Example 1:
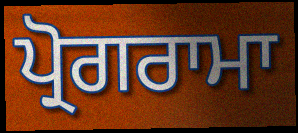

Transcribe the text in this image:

ਪ੍ਰੋਗਰਾਮਾ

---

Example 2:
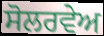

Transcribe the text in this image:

ਸੋਲਰਵੇਅ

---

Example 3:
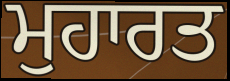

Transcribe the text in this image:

ਮੁਹਾਰਤ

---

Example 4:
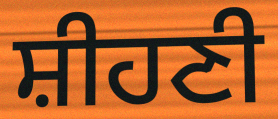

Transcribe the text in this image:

ਸ਼ੀਹਣੀ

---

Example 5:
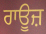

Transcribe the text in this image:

ਰਾਊਜ਼